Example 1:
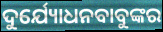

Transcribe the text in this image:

ଦୁର୍ଯ୍ୟୋଧନବାବୁଙ୍କର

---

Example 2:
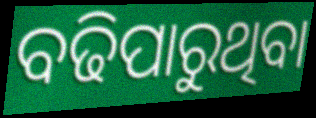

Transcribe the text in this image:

ବଢିପାରୁଥିବା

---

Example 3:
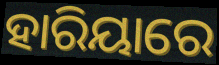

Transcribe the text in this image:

ହାରିୟାରେ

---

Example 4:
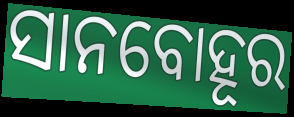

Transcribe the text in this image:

ସାନବୋହୂର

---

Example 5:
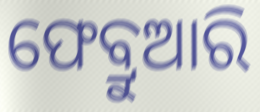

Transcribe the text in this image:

ଫେବ୍ରୁଆରି